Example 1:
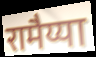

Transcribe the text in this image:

रामैय्या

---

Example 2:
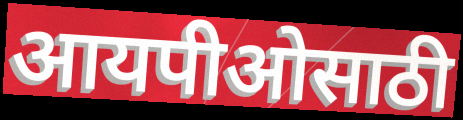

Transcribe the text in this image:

आयपीओसाठी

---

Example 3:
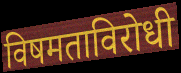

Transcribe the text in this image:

विषमताविरोधी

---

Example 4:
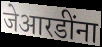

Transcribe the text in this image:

जेआरडींना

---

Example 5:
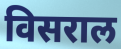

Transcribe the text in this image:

विसराल